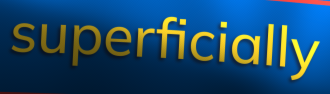
superficially